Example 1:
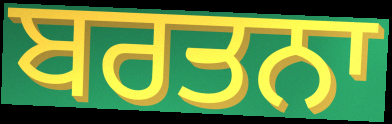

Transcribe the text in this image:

ਬਰਤਨਾ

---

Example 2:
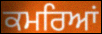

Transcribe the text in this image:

ਕਮਰਿਆਂ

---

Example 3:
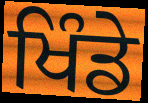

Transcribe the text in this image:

ਖਿੰਡੇ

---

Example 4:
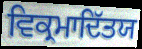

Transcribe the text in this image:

ਵਿਕ੍ਰਮਾਦਿੱਤਯ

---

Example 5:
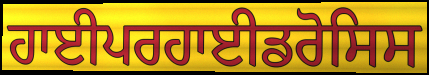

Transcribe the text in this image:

ਹਾਈਪਰਹਾਈਡਰੋਸਿਸ